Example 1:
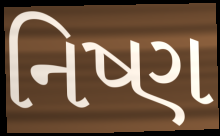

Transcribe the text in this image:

નિષ્ણ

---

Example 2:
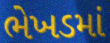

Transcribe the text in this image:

ભેખડમાં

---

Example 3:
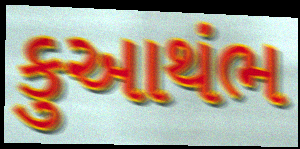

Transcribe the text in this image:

કુઆથંભ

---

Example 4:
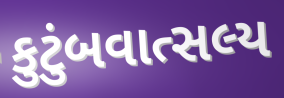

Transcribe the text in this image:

કુટુંબવાત્સલ્ય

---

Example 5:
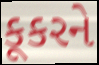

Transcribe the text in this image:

કૂકરને